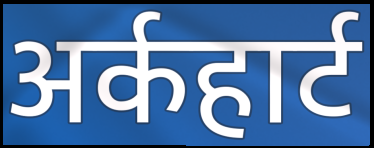
अर्कहार्ट